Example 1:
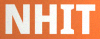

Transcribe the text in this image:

NHIT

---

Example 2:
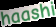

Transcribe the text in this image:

haashi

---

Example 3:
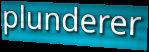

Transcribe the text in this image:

plunderer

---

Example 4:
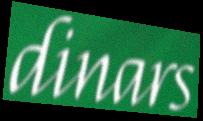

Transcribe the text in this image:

dinars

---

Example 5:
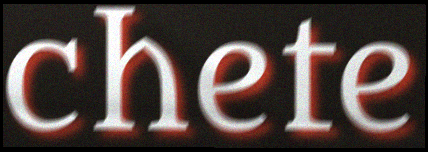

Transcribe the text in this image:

chete